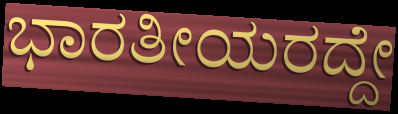
ಭಾರತೀಯರದ್ದೇ